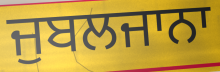
ਜੁਬਲਜਾਨਾ